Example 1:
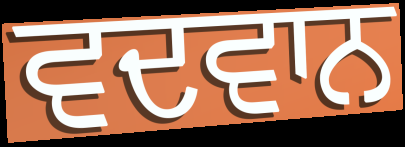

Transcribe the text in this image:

ਵਦਵਾਨ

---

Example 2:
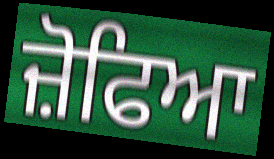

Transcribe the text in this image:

ਜ਼ੋਫਿਆ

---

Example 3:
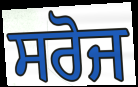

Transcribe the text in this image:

ਸਰੋਜ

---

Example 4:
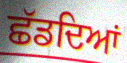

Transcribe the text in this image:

ਛੱਡਦਿਆਂ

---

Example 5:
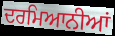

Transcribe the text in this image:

ਦਰਮਿਆਨੀਆਂ